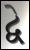
દ્વે